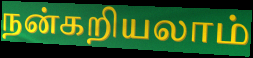
நன்கறியலாம்